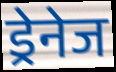
ड्रेनेज